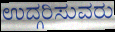
ಉದ್ಗರಿಸುವರು